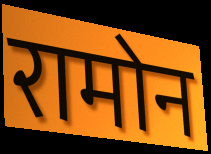
रामोन